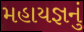
મહાયજ્ઞનું